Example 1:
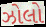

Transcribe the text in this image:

ઝોલો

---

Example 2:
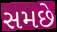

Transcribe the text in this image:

સમછે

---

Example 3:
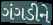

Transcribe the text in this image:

ગંગડીને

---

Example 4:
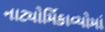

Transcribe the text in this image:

નાટ્યોર્મિકાવ્યોમાં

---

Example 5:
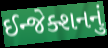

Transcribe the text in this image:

ઈન્જેક્શનનું